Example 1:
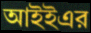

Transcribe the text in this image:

আইইএর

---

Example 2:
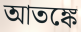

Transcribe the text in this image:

আতঙ্কে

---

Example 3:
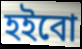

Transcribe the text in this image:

হইবো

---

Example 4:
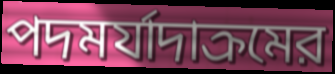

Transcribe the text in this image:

পদমর্যাদাক্রমের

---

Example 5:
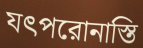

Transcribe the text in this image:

যৎপরোনাস্তি